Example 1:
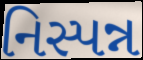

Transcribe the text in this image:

નિસ્પન્ન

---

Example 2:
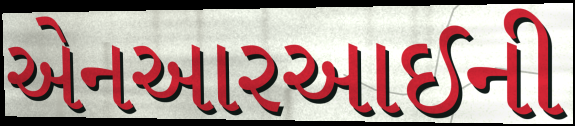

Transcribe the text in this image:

એનઆરઆઈની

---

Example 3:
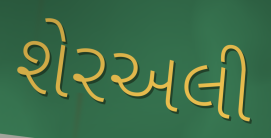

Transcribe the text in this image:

શેરઅલી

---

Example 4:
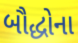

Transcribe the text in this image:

બૌદ્ધોના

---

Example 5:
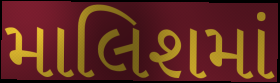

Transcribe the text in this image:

માલિશમાં